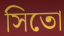
সিতো